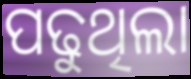
ପଢୁଥିଲା